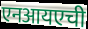
एनआयएची